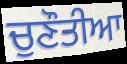
ਚੁਣੌਤੀਆ